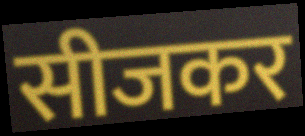
सीजकर